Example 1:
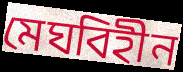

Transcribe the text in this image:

মেঘবিহীন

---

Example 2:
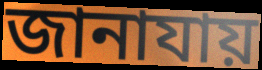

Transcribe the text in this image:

জানাযায়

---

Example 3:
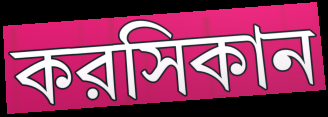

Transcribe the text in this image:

করসিকান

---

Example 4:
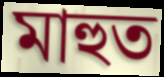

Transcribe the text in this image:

মাহুত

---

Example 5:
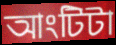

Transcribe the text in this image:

আংটিটা